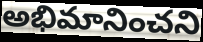
అభిమానించని